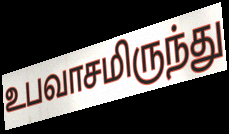
உபவாசமிருந்து